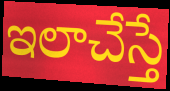
ఇలాచేస్తే